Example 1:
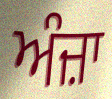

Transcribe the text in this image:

ਅੰਜ਼ਾ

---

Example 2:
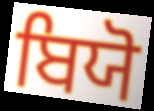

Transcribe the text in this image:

ਬਿਯੋ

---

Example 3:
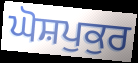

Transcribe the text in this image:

ਘੋਸ਼ਪੁਕੁਰ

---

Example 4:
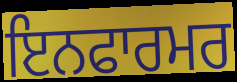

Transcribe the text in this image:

ਇਨਫਾਰਮਰ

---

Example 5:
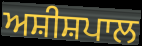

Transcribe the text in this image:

ਅਸ਼ੀਸ਼ਪਾਲ